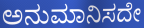
ಅನುಮಾನಿಸದೇ